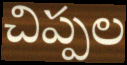
చిప్పల